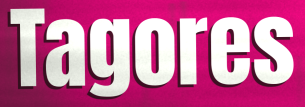
Tagores